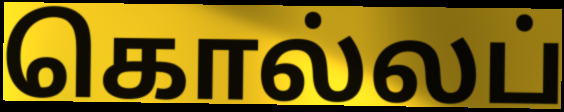
கொல்லப்